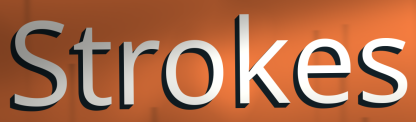
Strokes